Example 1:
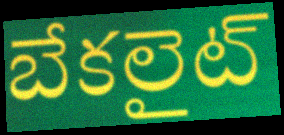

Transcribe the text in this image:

బేకలైట్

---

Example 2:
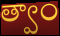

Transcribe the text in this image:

త్వాం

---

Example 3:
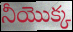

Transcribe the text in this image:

నీయొక్క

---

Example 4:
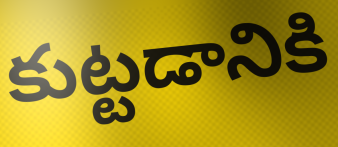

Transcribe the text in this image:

కుట్టడానికి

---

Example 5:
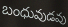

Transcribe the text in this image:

బంధువుడవు